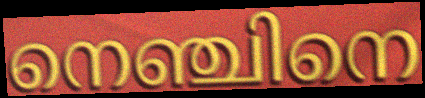
നെഞ്ചിനെ